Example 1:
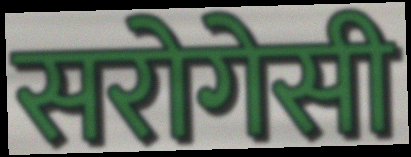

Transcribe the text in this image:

सरोगेसी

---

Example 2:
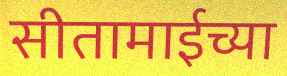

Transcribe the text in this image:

सीतामाईच्या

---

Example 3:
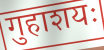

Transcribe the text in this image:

गुहाशयः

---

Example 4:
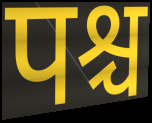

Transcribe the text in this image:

पश्च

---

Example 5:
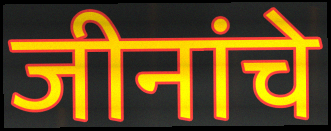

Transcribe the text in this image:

जीनांचे